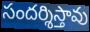
సందర్శిస్తావు